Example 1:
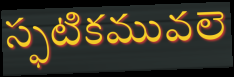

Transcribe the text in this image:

స్ఫటికమువలె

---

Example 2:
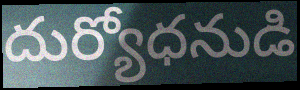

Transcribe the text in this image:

దుర్యోధనుడి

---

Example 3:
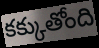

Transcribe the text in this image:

కక్కుతోంది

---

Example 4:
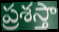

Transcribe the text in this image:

ప్రశస్తా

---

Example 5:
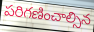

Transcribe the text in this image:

పరిగణించాల్సిన